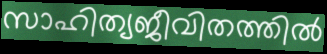
സാഹിത്യജീവിതത്തിൽ